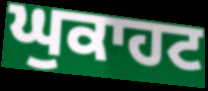
ਘੁਕਾਹਟ